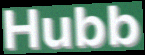
Hubb